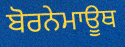
ਬੋਰਨੇਮਾਊਥ